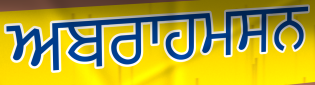
ਅਬਰਾਹਮਸਨ